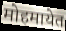
मोहमायेत